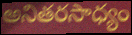
అనితరసాధ్యం